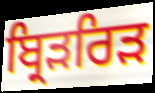
ਬ੍ਰਿੜਰਿੜ